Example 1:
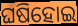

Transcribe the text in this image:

ଘଷିହୋଇ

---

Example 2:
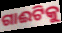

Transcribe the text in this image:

ଗାଈଟିକୁ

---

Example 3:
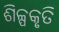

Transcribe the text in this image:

ଶିଳ୍ପକୃତି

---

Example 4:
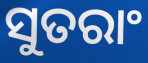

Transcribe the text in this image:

ସୁତରାଂ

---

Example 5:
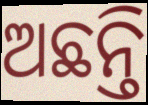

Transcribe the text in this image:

ଅଛନ୍ତି